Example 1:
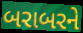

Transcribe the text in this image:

બરાબરને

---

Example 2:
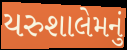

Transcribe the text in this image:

યરુશાલેમનું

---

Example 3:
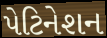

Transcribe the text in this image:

પેટિનેશન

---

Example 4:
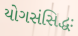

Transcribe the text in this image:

યોગસંસિદ્ધઃ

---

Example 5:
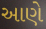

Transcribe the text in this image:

આણે